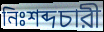
নিঃশব্দচারী